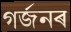
গৰ্জনৰ